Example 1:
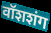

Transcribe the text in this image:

वॉशशंग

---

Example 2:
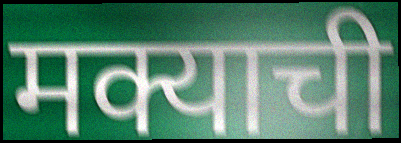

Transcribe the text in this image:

मक्याची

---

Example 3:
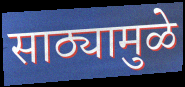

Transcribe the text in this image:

साठ्यामुळे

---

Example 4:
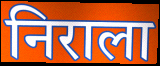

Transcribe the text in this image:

निराला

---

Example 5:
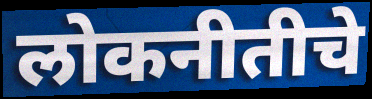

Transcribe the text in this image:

लोकनीतीचे